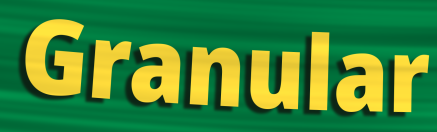
Granular